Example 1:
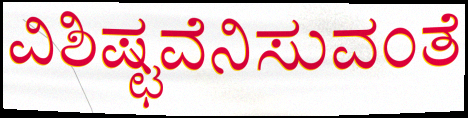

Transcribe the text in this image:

ವಿಶಿಷ್ಟವೆನಿಸುವಂತೆ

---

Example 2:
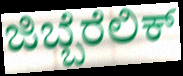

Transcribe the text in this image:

ಜಿಬ್ಬೆರೆಲಿಕ್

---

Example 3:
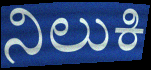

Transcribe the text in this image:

ನಿಲುಕಿ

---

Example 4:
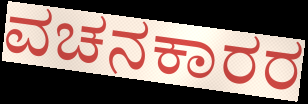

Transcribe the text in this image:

ವಚನಕಾರರ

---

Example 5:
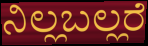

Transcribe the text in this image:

ನಿಲ್ಲಬಲ್ಲರೆ